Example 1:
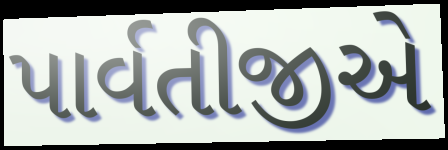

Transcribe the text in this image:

પાર્વતીજીએ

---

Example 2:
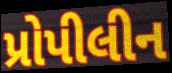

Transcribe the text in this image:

પ્રોપીલીન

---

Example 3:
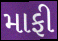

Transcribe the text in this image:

માફી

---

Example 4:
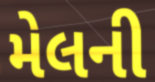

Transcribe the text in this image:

મેલની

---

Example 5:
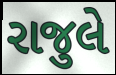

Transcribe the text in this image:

રાજુલે